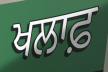
ਖਲਾਫ਼